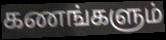
கணங்களும்